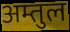
अम्तुल